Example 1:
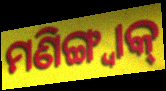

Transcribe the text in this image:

ମଣିଙ୍ଗ୍ୱାକ୍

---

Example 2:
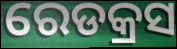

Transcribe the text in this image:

ରେଡକ୍ରସ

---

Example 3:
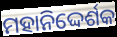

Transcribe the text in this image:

ମହାନିଦ୍ଦେର୍ଶକ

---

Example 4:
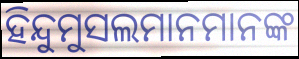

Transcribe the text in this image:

ହିନ୍ଦୁମୁସଲମାନମାନଙ୍କ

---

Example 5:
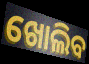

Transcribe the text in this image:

ଖୋଲିବ